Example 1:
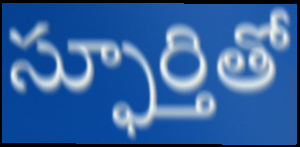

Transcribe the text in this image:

స్ఫూర్తితో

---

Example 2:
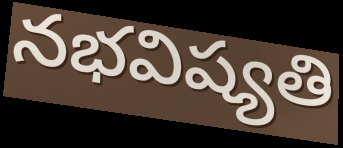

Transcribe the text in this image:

నభవిష్యతి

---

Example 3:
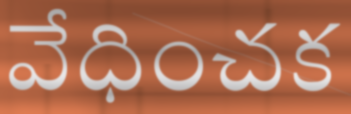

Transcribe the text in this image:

వేధించక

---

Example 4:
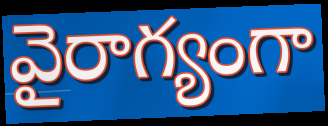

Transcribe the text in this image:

వైరాగ్యంగా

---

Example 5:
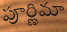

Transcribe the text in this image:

పూర్ణిమా